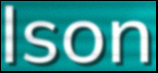
Ison